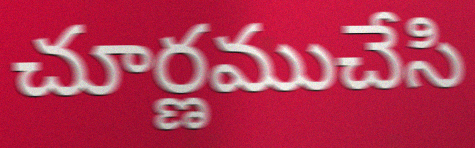
చూర్ణముచేసి